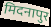
मिदनापुर